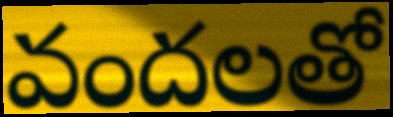
వందలతో